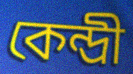
কেন্দ্রী